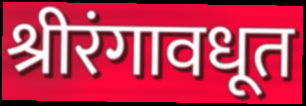
श्रीरंगावधूत